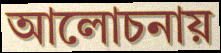
আলোচনায়